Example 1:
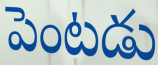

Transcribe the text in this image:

పెంటడు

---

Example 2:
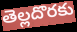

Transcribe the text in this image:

తెల్లదొరకు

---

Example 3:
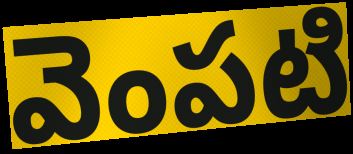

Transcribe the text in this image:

వెంపటి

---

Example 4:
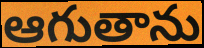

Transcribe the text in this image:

ఆగుతాను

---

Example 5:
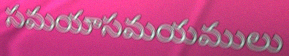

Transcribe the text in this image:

సమయాసమయములు